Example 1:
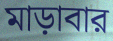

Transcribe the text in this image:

মাড়াবার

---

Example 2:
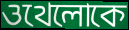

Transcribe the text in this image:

ওথেলোকে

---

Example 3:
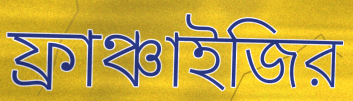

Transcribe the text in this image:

ফ্রাঞ্চাইজির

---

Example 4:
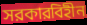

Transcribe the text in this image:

সরকারবিহীন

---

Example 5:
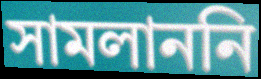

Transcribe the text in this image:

সামলাননি